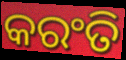
କରଂତି